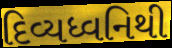
દિવ્યધ્વનિથી